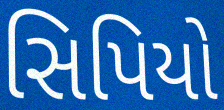
સિપિયો